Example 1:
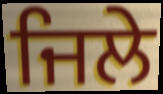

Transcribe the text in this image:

ਜਿਲੇ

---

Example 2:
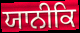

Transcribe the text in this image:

ਯਾਨੀਕਿ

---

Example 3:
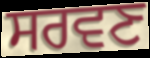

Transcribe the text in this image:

ਸਰਵਣ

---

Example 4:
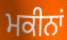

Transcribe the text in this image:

ਮਕੀਨਾਂ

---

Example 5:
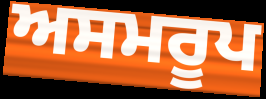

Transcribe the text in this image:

ਅਸਮਰੂਪ